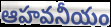
ఆహవనీయం